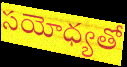
సయోధ్యతో